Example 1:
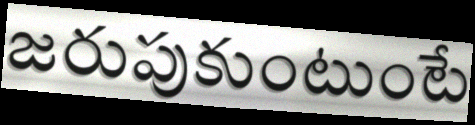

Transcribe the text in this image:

జరుపుకుంటుంటే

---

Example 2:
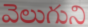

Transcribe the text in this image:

వెలుగుని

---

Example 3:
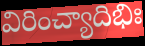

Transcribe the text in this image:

విరించ్యాదిభిః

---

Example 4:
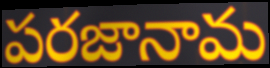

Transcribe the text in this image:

పరజానామ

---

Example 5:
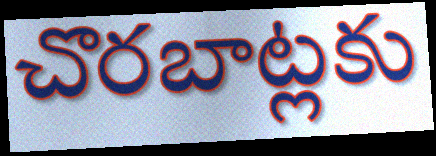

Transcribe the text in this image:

చొరబాట్లకు